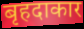
बृहदाकार